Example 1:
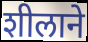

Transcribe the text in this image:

शीलाने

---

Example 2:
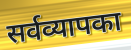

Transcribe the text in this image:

सर्वव्यापका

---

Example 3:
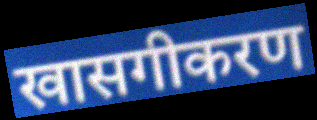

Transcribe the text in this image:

खासगीकरण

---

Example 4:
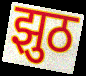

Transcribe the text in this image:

झुठ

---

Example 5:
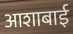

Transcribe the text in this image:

आशाबाई